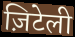
ज़िटेली